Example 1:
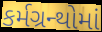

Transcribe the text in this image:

કર્મગ્રન્થોમાં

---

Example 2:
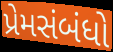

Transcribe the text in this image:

પ્રેમસંબંધો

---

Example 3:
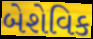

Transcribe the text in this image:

બેશેવિક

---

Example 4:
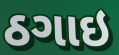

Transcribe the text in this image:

ઠગાઇ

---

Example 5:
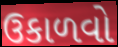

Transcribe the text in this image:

ઉકાળવો